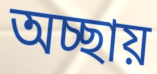
অচ্ছায়